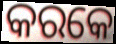
କରକେ